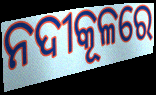
ନଦୀକୂଳରେ